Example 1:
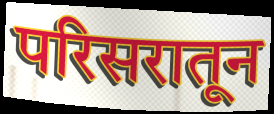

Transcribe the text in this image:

परिसरातून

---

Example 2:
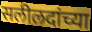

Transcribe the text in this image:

सलीलदांच्या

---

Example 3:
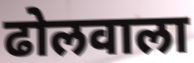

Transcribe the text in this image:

ढोलवाला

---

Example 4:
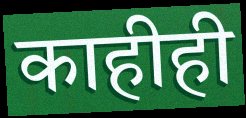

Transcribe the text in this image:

काहीही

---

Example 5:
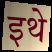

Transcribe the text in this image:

इथे